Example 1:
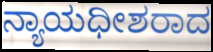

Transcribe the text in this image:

ನ್ಯಾಯಧೀಶರಾದ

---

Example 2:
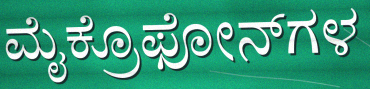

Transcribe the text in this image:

ಮೈಕ್ರೊಫೋನ್‌ಗಳ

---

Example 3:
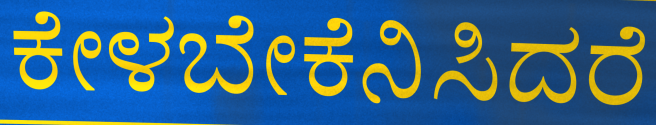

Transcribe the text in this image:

ಕೇಳಬೇಕೆನಿಸಿದರೆ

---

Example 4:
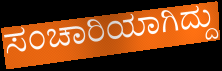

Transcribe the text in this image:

ಸಂಚಾರಿಯಾಗಿದ್ದು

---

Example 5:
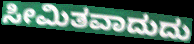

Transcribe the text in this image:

ಸೀಮಿತವಾದುದು